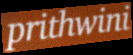
prithwini